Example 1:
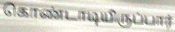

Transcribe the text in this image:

கொண்டாடியிருப்பார்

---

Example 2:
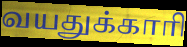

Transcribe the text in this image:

வயதுக்காரி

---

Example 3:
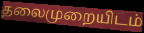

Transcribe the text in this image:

தலைமுறையிடம்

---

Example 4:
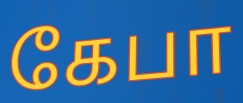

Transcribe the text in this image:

கேபா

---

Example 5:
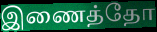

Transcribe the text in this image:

இணைத்தோ